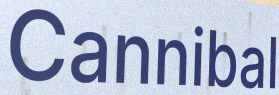
Cannibal